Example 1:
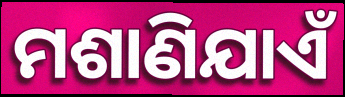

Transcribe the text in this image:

ମଶାଣିଯାଏଁ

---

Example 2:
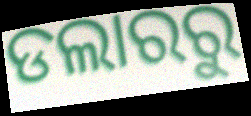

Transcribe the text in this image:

ଡଲାରରୁ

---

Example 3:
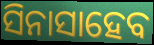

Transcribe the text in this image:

ସିନାସାହେବ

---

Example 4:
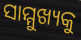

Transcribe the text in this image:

ସାମ୍ମୁଖ୍ୟକୁ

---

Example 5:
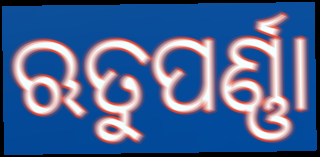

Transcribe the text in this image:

ଋତୁପର୍ଣ୍ଣା